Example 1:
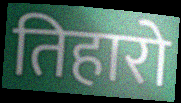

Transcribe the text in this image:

तिहारो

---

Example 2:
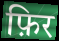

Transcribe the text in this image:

फ़िर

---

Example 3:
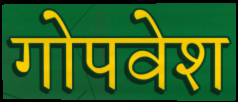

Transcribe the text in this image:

गोपवेश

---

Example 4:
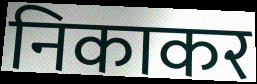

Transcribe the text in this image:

निकाकर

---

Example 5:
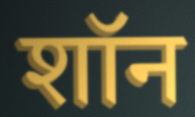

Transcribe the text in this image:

शॉन